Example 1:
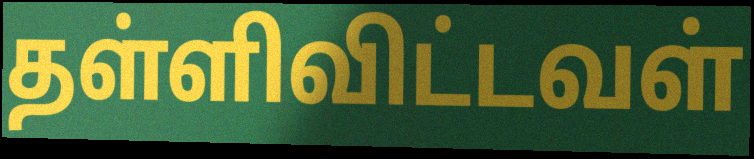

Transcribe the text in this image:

தள்ளிவிட்டவள்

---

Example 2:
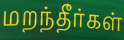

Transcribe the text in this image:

மறந்தீர்கள்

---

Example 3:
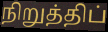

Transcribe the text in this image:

நிறுத்திப்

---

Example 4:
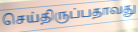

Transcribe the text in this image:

செய்திருப்பதாவது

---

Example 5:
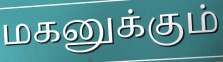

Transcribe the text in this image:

மகனுக்கும்